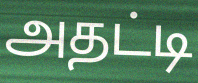
அதட்டி